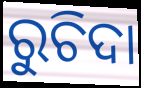
ରୁଚିଦା